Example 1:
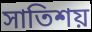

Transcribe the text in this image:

সাতিশয়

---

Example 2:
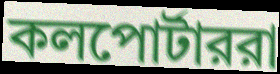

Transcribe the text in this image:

কলপোর্টাররা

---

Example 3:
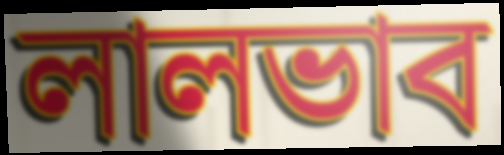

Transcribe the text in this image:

লালভাব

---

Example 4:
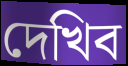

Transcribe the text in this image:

দেখিব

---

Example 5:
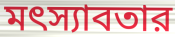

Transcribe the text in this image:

মৎস্যাবতার